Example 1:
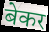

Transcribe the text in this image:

बेकर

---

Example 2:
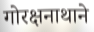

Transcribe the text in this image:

गोरक्षनाथाने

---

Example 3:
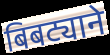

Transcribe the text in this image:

बिबट्याने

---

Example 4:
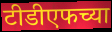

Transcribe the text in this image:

टीडीएफच्या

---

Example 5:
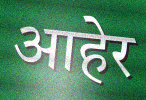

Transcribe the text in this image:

आहेर